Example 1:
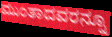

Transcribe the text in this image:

ಮುಂತಾದವರನ್ನೂ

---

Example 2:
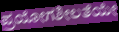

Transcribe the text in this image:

ಪ್ರಯೋಗಶೀಲತೆಯೇ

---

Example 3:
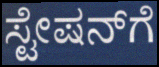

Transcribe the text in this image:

ಸ್ಟೇಷನ್‍ಗೆ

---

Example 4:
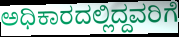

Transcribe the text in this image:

ಅಧಿಕಾರದಲ್ಲಿದ್ದವರಿಗೆ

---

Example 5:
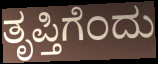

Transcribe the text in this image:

ತೃಪ್ತಿಗೆಂದು